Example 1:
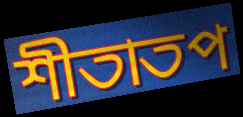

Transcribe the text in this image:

শীতাতপ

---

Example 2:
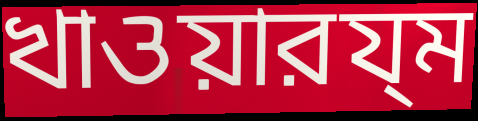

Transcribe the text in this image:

খাওয়ারয্ম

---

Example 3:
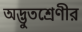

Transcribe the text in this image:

অদ্ভুতশ্রেণীর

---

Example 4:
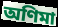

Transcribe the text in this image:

অণিমা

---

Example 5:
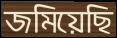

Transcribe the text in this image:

জমিয়েছি